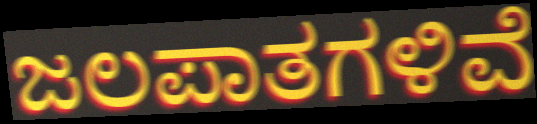
ಜಲಪಾತಗಳಿವೆ